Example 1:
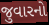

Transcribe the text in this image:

જુવારનો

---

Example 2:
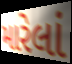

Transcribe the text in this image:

મારેલાં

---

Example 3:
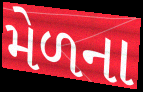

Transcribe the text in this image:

મેળના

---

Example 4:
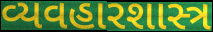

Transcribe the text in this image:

વ્યવહારશાસ્ત્ર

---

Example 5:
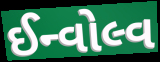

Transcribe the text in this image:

ઈન્વોલ્વ